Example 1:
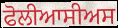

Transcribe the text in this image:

ਫੋਲੀਆਸੀਅਸ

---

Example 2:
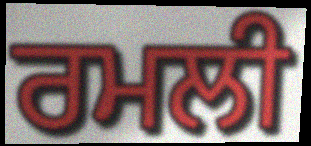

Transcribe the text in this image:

ਰਮਲੀ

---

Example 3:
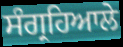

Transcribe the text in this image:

ਸੰਗ੍ਰਹਿਆਲੇ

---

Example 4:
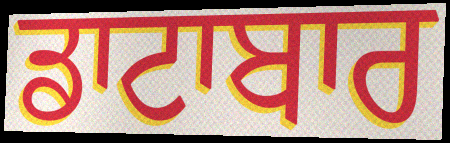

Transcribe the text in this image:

ਡਾਟਾਬਾਰ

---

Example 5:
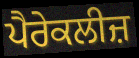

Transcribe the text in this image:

ਪੈਰੇਕਲੀਜ਼